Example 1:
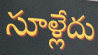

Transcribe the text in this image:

సూళ్లేదు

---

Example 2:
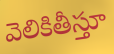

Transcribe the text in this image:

వెలికితీస్తూ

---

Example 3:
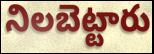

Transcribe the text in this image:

నిలబెట్టారు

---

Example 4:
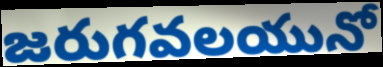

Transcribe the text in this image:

జరుగవలయునో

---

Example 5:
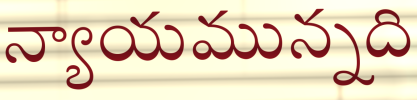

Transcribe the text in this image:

న్యాయమున్నది